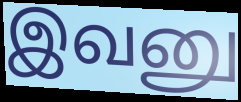
இவனு